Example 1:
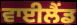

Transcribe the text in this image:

ਵਾਈਲੈਂਡ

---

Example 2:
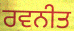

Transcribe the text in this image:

ਰਵਨੀਤ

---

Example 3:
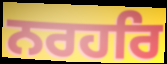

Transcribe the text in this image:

ਨਰਹਰਿ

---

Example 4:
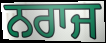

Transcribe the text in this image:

ਨਰਾਜ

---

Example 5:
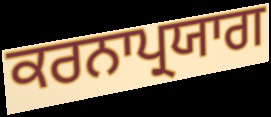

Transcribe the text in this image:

ਕਰਨਾਪ੍ਰਯਾਗ